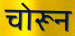
चोरून